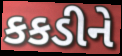
કકડીને